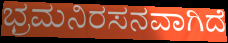
ಭ್ರಮನಿರಸನವಾಗಿದೆ